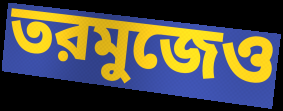
তরমুজেও